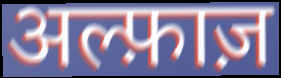
अल्फ़ाज़